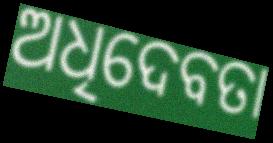
ଅଧିଦେବତା